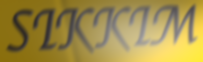
SIKKIM